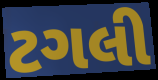
ટગલી